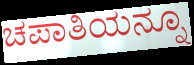
ಚಪಾತಿಯನ್ನೂ